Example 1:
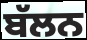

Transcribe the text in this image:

ਬੱਲਨ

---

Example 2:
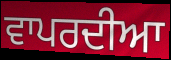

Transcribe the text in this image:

ਵਾਪਰਦੀਆ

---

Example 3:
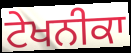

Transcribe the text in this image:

ਟੇਖਨੀਕਾ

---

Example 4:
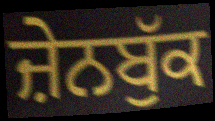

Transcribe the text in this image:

ਜ਼ੇਨਬੁੱਕ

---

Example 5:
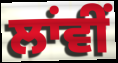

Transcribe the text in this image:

ਲਾਂਵੀਂ